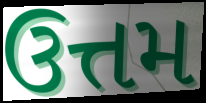
ઉત્તમ